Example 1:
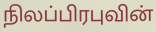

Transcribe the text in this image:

நிலப்பிரபுவின்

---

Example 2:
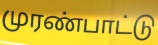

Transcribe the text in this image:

முரண்பாட்டு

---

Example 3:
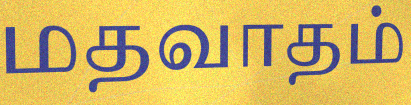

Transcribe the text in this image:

மதவாதம்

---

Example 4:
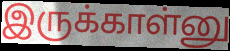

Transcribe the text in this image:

இருக்காள்னு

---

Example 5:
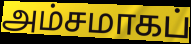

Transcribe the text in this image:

அம்சமாகப்